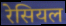
रेसियल